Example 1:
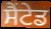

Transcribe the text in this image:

ਸੈਂਟੇਡ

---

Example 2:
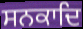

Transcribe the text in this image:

ਸਨਕਾਦਿ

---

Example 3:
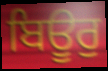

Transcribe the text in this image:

ਬਿਊਰੁ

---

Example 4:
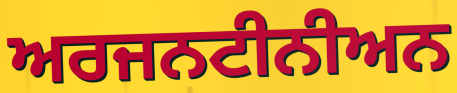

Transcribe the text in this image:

ਅਰਜਨਟੀਨੀਅਨ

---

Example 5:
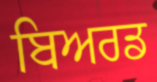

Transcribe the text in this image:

ਬਿਅਰਡ